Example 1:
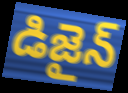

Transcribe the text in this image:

డిజైన్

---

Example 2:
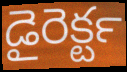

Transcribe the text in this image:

డైరెక్టర్‍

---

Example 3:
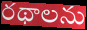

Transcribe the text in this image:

రథాలను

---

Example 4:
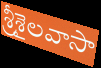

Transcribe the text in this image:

శ్రీశైలవాసా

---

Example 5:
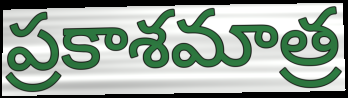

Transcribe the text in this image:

ప్రకాశమాత్ర